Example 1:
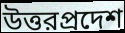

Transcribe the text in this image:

উত্তরপ্রদেশ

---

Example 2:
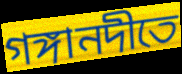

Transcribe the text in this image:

গঙ্গানদীতে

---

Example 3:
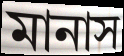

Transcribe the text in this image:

মানাস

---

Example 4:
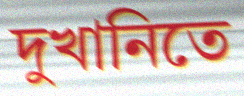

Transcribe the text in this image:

দুখানিতে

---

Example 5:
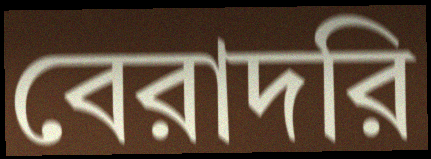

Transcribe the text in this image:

বেরাদরি